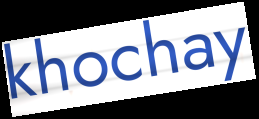
khochay